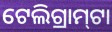
ଟେଲିଗ୍ରାମ୍‍ଟା